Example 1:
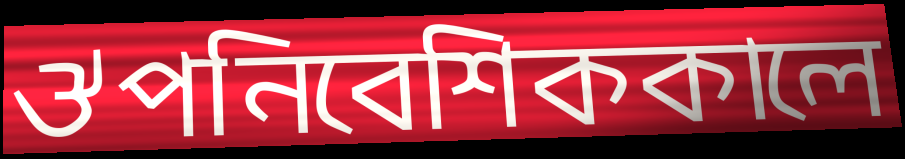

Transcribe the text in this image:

ঔপনিবেশিককালে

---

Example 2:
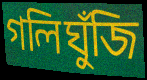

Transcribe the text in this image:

গলিঘুঁজি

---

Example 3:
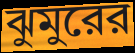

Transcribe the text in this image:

ঝুমুরের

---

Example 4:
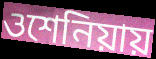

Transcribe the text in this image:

ওশেনিয়ায়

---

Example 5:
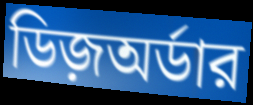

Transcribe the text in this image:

ডিজ়অর্ডার